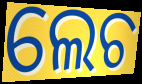
ଲେଚ